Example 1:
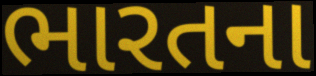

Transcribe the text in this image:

ભારતના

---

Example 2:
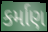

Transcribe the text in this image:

કર્માણ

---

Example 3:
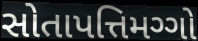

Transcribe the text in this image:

સોતાપત્તિમગ્ગો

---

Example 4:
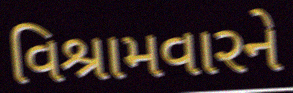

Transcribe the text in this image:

વિશ્રામવારને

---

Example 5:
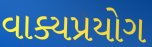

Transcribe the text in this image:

વાક્યપ્રયોગ